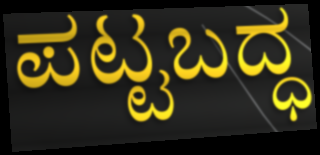
ಪಟ್ಟಬದ್ಧ